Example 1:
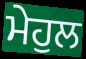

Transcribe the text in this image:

ਮੇਹੁਲ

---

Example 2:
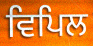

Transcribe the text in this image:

ਵਿਪਿਲ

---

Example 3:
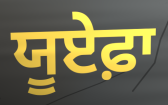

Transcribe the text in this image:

ਯੂਏਫ਼ਾ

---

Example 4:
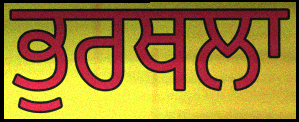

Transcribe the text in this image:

ਭੁਰਥਲਾ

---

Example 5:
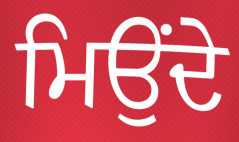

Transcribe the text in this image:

ਮਿਉਂਦੇ